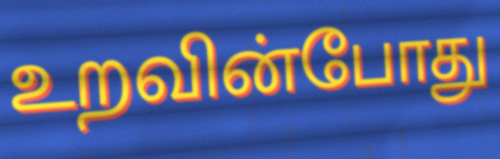
உறவின்போது